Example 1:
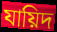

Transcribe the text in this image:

যায়িদ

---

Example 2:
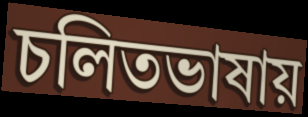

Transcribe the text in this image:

চলিতভাষায়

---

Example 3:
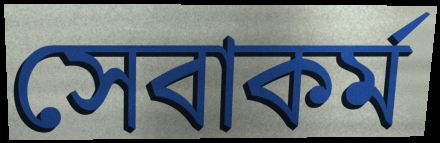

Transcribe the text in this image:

সেবাকর্ম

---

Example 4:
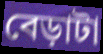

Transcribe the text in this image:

বেড়াটা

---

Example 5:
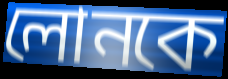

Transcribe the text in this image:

লোনকে